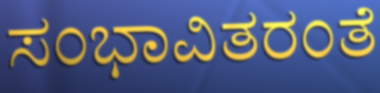
ಸಂಭಾವಿತರಂತೆ